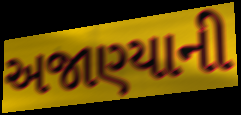
અજાણ્યાની